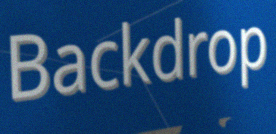
Backdrop